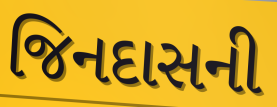
જિનદાસની